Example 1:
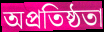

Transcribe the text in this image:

অপ্রতিষ্ঠতা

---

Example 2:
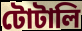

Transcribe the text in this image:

টোটালি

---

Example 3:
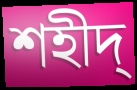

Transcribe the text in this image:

শহীদ্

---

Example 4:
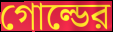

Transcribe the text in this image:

গোল্ডের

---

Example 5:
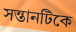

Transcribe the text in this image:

সন্তানটিকে